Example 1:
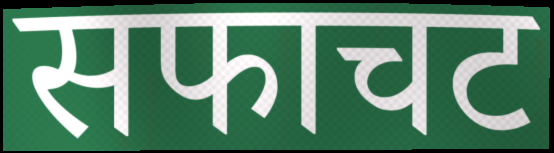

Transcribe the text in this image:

सफाचट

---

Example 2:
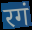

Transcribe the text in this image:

रगं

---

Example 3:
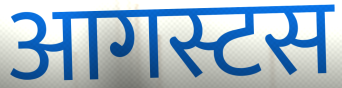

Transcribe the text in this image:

आगस्टस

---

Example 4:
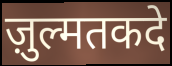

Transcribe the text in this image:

ज़ुल्मतकदे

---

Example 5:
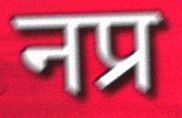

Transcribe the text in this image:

नप्र